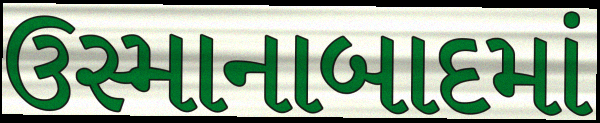
ઉસ્માનાબાદમાં